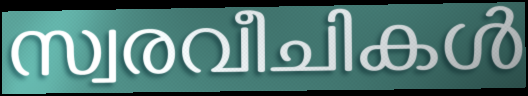
സ്വരവീചികൾ